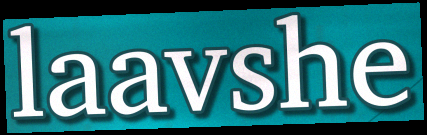
laavshe